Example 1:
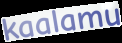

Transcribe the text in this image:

kaalamu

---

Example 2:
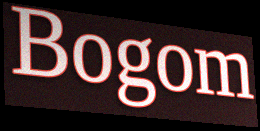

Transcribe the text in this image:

Bogom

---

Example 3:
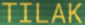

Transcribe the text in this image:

TILAK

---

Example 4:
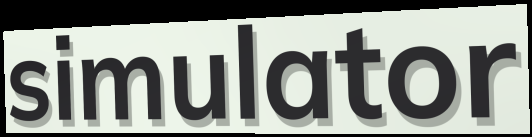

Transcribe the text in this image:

simulator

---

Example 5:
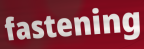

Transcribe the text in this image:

fastening